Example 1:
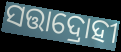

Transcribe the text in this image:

ସତ୍ତାଦ୍ରୋହୀ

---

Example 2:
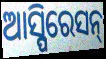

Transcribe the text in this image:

ଆସ୍ପିରେସନ୍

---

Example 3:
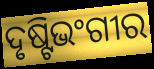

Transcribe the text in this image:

ଦୃଷ୍ଟିଭଂଗୀର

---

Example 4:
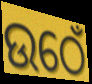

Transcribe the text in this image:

ଉଠେଁ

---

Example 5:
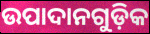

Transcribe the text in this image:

ଉପାଦାନଗୁଡ଼ିକ